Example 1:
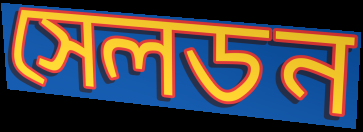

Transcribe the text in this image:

সেলডন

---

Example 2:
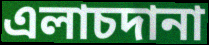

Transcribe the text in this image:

এলাচদানা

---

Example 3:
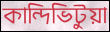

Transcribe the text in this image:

কান্দিভিটুয়া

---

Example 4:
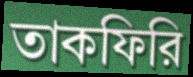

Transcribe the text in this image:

তাকফিরি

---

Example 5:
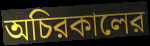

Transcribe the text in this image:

অচিরকালের